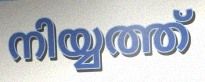
നിയ്യത്ത്